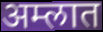
अम्लात